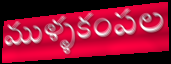
ముళ్ళకంపల